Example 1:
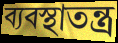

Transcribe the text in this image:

ব্যবস্থাতন্ত্র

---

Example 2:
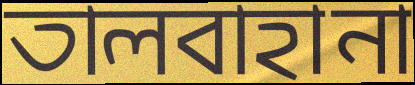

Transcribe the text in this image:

তালবাহানা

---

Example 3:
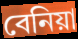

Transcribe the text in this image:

বেনিয়া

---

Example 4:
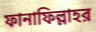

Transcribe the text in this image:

ফানাফিল্লাহর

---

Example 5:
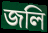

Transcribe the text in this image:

জলি